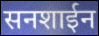
सनशाईन